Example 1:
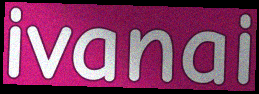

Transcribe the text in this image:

ivanai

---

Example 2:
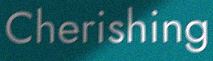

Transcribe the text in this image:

Cherishing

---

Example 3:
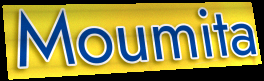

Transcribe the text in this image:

Moumita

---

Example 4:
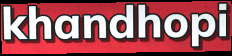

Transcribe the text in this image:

khandhopi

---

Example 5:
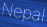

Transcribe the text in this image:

Nepal